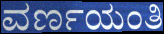
ವರ್ಣಯಂತಿ